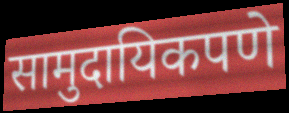
सामुदायिकपणे